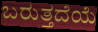
ಬರುತ್ತದೆಯೆ